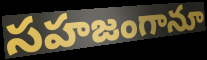
సహజంగానూ